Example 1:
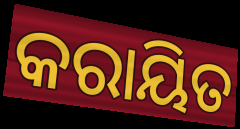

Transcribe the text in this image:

କରାୟିତ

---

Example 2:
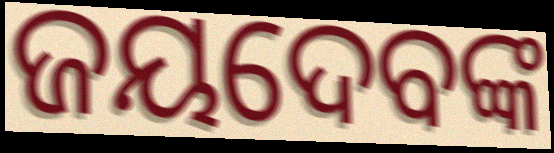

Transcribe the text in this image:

ଜୟଦେବଙ୍କ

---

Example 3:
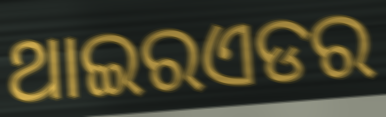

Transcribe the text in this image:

ଥାଇରଏଡର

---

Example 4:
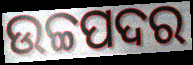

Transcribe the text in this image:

ଉଚ୍ଚପଦର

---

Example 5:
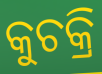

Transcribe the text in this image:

କୁଚକ୍ରି